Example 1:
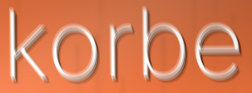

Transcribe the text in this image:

korbe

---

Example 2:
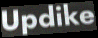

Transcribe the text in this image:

Updike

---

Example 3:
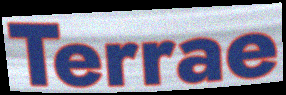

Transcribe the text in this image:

Terrae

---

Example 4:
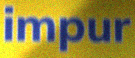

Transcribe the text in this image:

impur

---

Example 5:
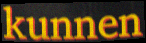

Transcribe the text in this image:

kunnen